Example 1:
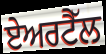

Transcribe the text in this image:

ਏਅਰਟੈੱਲ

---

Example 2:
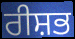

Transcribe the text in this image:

ਰੀਸ਼ਭ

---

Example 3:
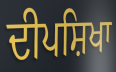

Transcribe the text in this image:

ਦੀਪਸ਼ਿਖਾ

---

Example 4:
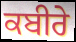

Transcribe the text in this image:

ਕਬੀਰੇ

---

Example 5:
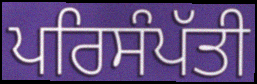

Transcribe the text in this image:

ਪਰਿਸੰਪੱਤੀ